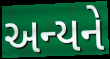
અન્યને